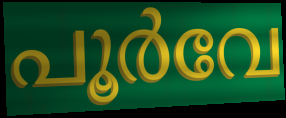
പൂർവേ